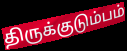
திருக்குடும்பம்